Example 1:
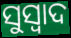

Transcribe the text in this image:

ସୁସ୍ୱାଦ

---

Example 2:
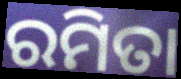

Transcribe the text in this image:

ରମିତା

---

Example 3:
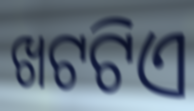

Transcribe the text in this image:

ଖଟଟିଏ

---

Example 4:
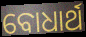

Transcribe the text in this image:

ବୋଧାର୍ଥ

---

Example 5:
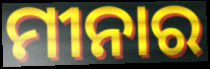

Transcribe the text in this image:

ମୀନାର